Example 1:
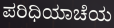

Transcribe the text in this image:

ಪರಿಧಿಯಾಚೆಯ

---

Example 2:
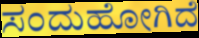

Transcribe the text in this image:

ಸಂದುಹೋಗಿದೆ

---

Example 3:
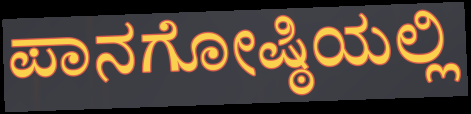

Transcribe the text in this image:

ಪಾನಗೋಷ್ಠಿಯಲ್ಲಿ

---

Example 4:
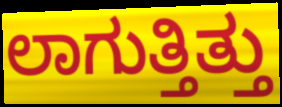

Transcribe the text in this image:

ಲಾಗುತ್ತಿತ್ತು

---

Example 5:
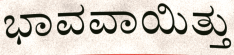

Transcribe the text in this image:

ಭಾವವಾಯಿತ್ತು